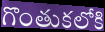
గొంతుకలోకి